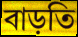
বাড়তি